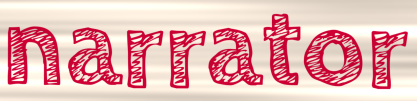
narrator